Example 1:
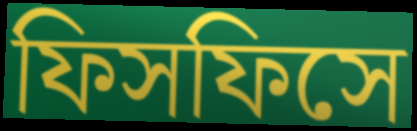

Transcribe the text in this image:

ফিসফিসে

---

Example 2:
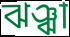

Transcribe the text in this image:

ঝঞ্ঝা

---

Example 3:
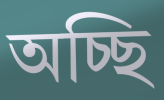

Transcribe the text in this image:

অচ্ছি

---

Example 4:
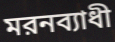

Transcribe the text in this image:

মরনব্যাধী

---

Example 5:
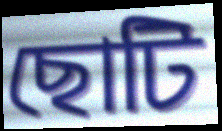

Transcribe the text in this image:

ছোটি